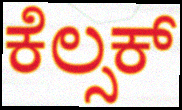
ಕೆಲ್ಸಕ್